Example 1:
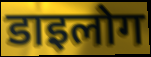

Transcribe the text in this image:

डाइलोग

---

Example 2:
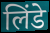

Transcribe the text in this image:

लिंडे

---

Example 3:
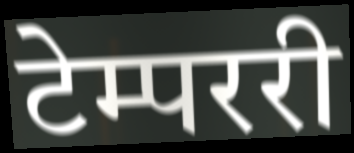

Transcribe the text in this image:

टेम्पररी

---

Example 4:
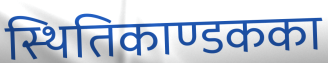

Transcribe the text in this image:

स्थितिकाण्डकका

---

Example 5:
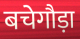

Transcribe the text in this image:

बचेगौड़ा